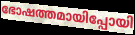
ഭോഷത്തമായിപ്പോയി